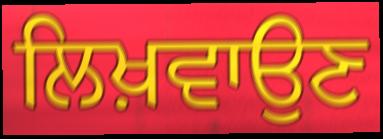
ਲਿਖ਼ਵਾਉਣ